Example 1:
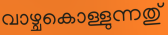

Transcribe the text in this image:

വാഴ്ചകൊള്ളുന്നതു്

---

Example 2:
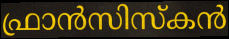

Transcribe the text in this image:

ഫ്രാൻസിസ്കൻ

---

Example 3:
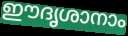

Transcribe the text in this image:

ഈദൃശാനാം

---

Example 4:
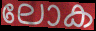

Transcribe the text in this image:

ലോക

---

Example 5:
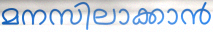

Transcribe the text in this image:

മനസിലാക്കാൻ